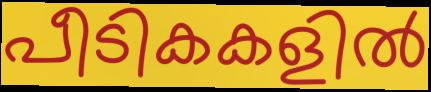
പീടികകളിൽ